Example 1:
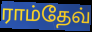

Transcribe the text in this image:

ராம்தேவ்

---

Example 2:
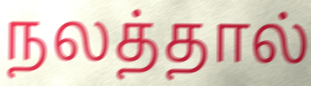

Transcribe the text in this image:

நலத்தால்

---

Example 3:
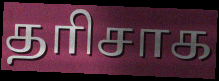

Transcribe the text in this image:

தரிசாக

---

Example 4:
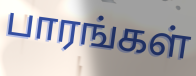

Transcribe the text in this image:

பாரங்கள்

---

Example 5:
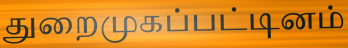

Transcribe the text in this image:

துறைமுகப்பட்டினம்